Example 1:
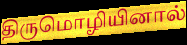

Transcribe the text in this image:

திருமொழியினால்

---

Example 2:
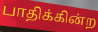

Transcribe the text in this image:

பாதிக்கின்ற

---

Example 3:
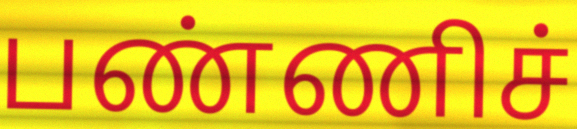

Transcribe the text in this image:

பண்ணிச்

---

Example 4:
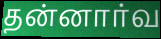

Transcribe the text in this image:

தன்னார்வ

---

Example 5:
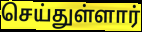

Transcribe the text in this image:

செய்துள்ளார்